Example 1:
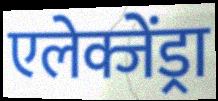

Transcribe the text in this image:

एलेक्जेंड्रा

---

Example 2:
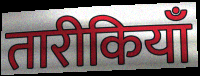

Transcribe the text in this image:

तारीकियाँ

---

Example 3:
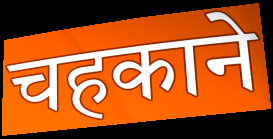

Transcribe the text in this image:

चहकाने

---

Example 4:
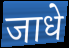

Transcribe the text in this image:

जाधे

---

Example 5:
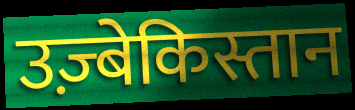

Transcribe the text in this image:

उज़्बेकिस्तान